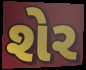
શેર